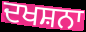
ਦਖਸ਼ਨਾ